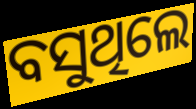
ବସୁଥିଲେ